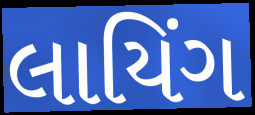
લાયિંગ